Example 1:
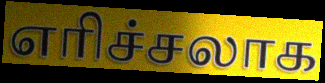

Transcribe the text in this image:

எரிச்சலாக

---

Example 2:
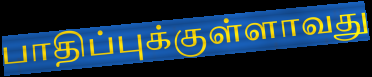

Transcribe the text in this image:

பாதிப்புக்குள்ளாவது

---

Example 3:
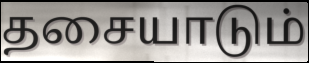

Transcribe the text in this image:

தசையாடும்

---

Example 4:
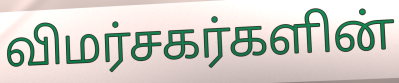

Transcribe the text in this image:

விமர்சகர்களின்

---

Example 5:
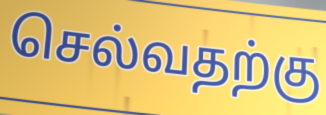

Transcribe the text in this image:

செல்வதற்கு